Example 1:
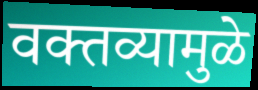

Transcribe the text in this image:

वक्तव्यामुळे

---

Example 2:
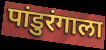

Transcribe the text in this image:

पांडुरंगाला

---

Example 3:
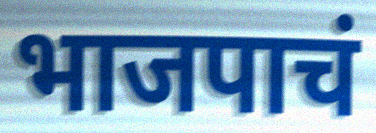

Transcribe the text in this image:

भाजपाचं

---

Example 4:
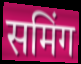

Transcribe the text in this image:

समिंग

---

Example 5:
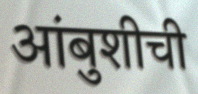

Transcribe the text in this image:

आंबुशीची